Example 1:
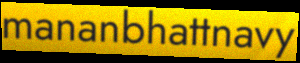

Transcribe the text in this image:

mananbhattnavy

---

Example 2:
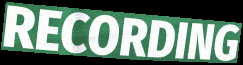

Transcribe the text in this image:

RECORDING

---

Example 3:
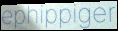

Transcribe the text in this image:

ephippiger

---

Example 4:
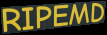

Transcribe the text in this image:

RIPEMD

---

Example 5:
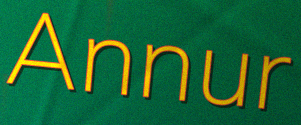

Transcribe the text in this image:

Annur